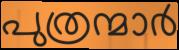
പുത്രന്മാർ